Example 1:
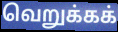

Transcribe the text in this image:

வெறுக்கக்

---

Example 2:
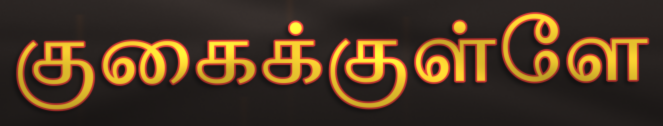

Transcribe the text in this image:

குகைக்குள்ளே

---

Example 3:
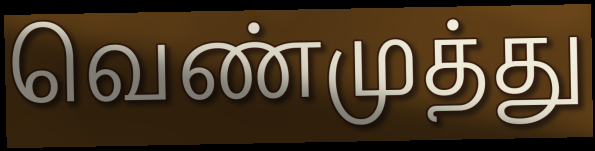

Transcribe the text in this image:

வெண்முத்து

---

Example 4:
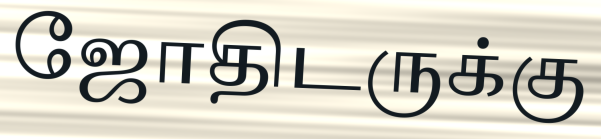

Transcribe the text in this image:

ஜோதிடருக்கு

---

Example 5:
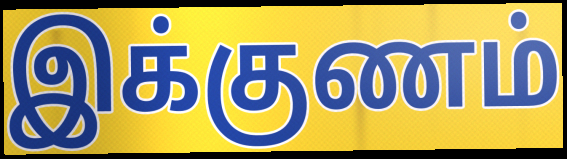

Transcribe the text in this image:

இக்குணம்